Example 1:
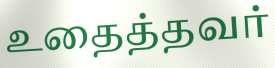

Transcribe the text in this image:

உதைத்தவர்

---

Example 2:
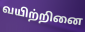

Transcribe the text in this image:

வயிற்றினை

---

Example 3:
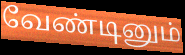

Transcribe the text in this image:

வேண்டினும்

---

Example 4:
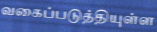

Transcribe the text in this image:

வகைப்படுத்தியுள்ள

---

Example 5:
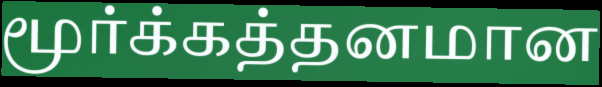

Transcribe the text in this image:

மூர்க்கத்தனமான